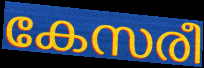
കേസരീ